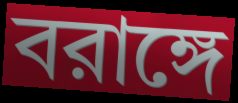
বরাঙ্গে